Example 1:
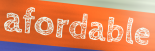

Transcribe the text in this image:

afordable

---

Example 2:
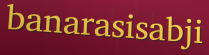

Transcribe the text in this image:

banarasisabji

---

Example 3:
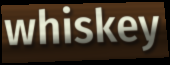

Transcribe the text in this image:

whiskey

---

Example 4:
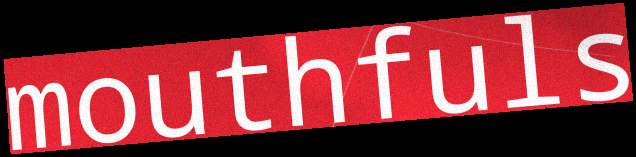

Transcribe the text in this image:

mouthfuls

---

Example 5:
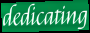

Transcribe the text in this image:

dedicating